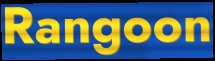
Rangoon